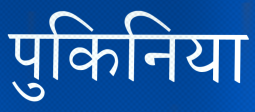
पुकिनिया